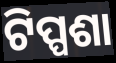
ଟିପ୍ପଶା